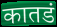
कातडं